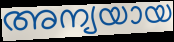
അന്യയായ